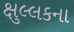
ક્ષુલ્લકના